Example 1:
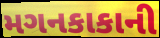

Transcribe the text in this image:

મગનકાકાની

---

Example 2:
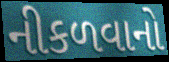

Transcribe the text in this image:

નીકળવાનો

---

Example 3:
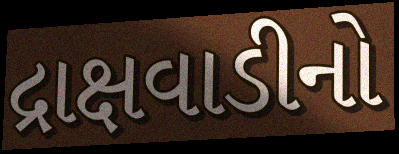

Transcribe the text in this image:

દ્રાક્ષવાડીનો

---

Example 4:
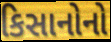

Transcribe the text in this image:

કિસાનોનો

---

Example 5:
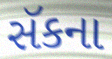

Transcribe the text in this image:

સૅકના